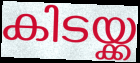
കിടയ്ക്ക